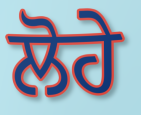
ਲੋਹੇ